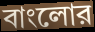
বাংলোর